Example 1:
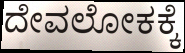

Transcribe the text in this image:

ದೇವಲೋಕಕ್ಕೆ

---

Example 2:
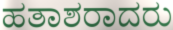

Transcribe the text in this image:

ಹತಾಶರಾದರು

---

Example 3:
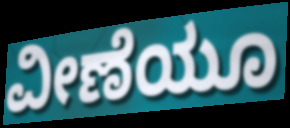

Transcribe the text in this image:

ವೀಣೆಯೂ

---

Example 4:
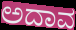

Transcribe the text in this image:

ಅದಾವ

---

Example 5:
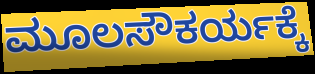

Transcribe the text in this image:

ಮೂಲಸೌಕರ್ಯಕ್ಕೆ